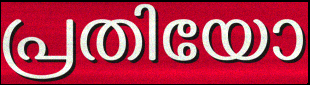
പ്രതിയോ